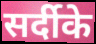
सर्दीके